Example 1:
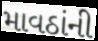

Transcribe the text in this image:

માવઠાંની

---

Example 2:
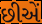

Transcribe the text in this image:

છીએં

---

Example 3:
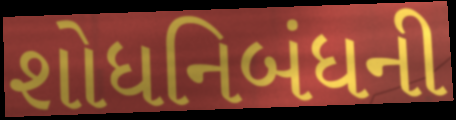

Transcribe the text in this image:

શોધનિબંધની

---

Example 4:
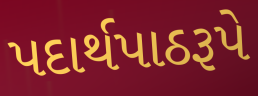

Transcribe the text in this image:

પદાર્થપાઠરૂપે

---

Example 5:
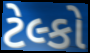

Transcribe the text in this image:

ટેલ્કો